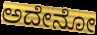
ಅದೇನೋ